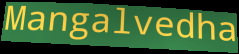
Mangalvedha